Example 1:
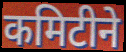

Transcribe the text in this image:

कमिटीने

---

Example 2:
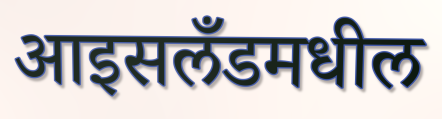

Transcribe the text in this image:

आइसलँडमधील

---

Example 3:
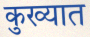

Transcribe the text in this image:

कुख्यात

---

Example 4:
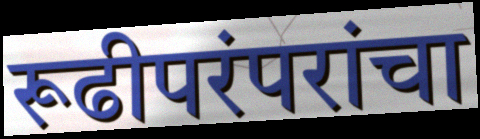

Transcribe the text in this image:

रूढीपरंपरांचा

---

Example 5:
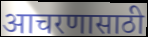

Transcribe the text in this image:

आचरणासाठी